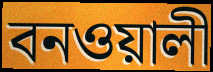
বনওয়ালী